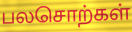
பலசொற்கள்